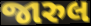
જારુલ